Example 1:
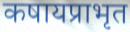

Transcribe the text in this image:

कषायप्राभृत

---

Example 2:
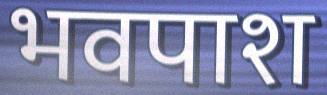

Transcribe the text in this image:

भवपाश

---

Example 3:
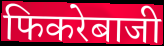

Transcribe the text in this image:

फिकरेबाजी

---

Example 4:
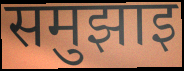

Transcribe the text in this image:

समुझाइ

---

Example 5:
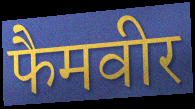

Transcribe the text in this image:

फैमवीर